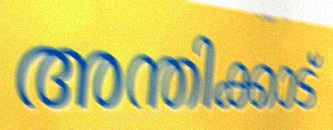
അന്തിക്കാട്